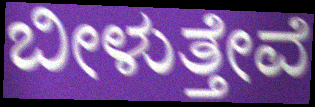
ಬೀಳುತ್ತೇವೆ